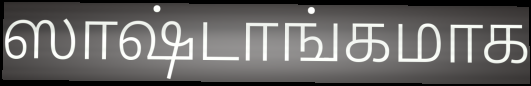
ஸாஷ்டாங்கமாக